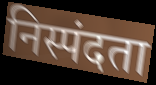
निस्पंदता